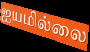
ஐயமில்லை